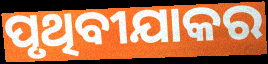
ପୃଥିବୀଯାକର